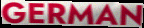
GERMAN